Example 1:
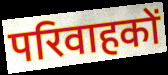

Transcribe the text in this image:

परिवाहकों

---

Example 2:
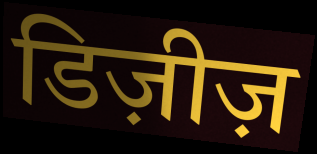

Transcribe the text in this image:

डिज़ीज़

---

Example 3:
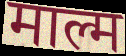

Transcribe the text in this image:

माल्म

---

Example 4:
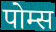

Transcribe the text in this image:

पोम्स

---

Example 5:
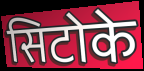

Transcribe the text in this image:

सिटोके